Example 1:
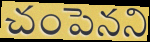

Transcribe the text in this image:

చంపెనని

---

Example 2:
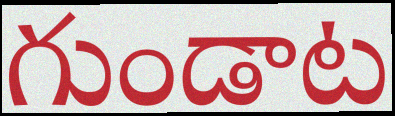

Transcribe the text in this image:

గుండాట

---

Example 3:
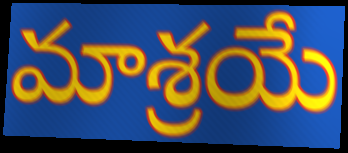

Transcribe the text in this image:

మాశ్రయే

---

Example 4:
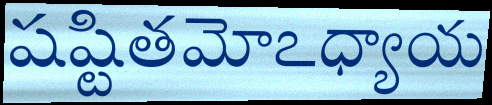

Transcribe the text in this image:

షష్టితమోఽధ్యాయ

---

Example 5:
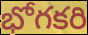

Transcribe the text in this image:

భోగకరి